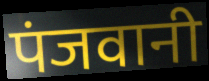
पंजवानी